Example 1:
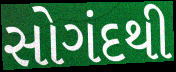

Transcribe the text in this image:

સોગંદથી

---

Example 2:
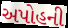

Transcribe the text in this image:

અપોહની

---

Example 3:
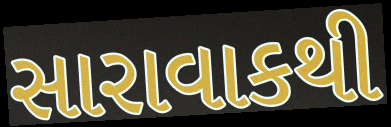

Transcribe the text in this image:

સારાવાકથી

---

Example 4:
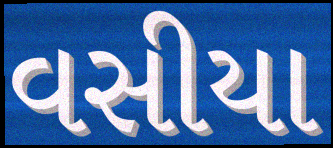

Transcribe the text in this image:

વસીયા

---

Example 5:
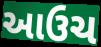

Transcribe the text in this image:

આઉચ